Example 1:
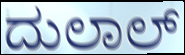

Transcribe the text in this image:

ದುಲಾಲ್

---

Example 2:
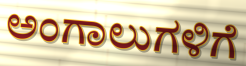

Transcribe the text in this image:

ಅಂಗಾಲುಗಳಿಗೆ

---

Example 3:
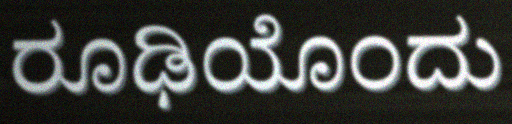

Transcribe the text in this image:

ರೂಢಿಯೊಂದು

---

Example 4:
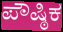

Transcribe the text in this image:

ಪೌಷ್ಠಿಕ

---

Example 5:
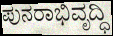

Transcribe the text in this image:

ಪುನರಾಭಿವೃದ್ಧಿ